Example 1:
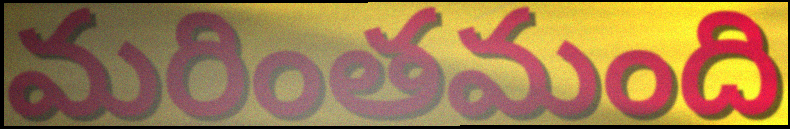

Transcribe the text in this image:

మరింతమంది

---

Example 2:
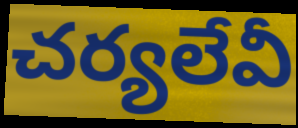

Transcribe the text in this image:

చర్యలేవీ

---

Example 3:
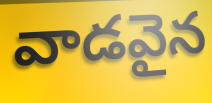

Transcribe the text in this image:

వాడవైన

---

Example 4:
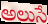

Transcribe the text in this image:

అలుసే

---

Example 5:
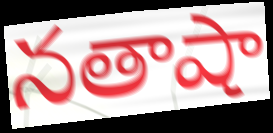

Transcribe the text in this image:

నతాషా